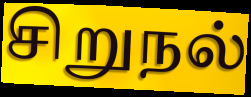
சிறுநல்